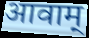
आवाम्